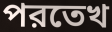
পরতেখ